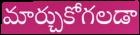
మార్చుకోగలడా